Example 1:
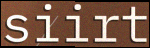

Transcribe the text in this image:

siirt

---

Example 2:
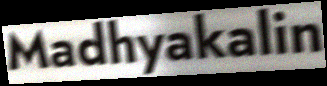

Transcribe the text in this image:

Madhyakalin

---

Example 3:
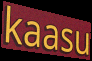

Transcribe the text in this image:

kaasu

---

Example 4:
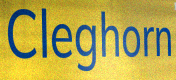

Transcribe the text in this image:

Cleghorn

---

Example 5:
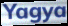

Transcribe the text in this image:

Yagya